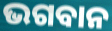
ଭଗବାନ